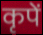
कृपें